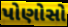
પોણોસો